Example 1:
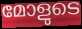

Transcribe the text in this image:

മോളുടെ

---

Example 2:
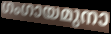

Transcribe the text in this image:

ഗംഗായമുനാ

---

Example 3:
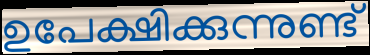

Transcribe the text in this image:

ഉപേക്ഷിക്കുന്നുണ്ട്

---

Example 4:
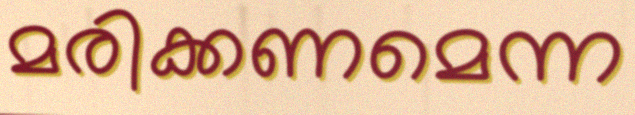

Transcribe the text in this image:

മരിക്കണമെന്ന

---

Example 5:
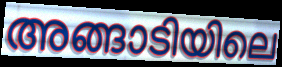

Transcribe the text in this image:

അങ്ങാടിയിലെ